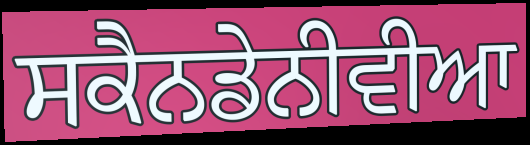
ਸਕੈਨਡੇਨੀਵੀਆ